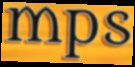
mps